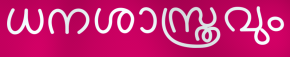
ധനശാസ്ത്രവും